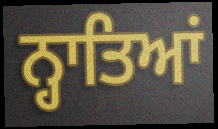
ਨ੍ਹਾਤਿਆਂ